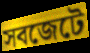
সবজেটে